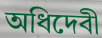
অধিদেবী